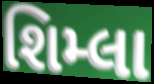
શિમ્લા